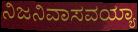
ನಿಜನಿವಾಸವಯ್ಯಾ